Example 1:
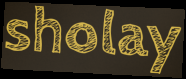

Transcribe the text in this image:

sholay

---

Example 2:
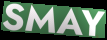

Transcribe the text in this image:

SMAY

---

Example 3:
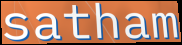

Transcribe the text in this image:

satham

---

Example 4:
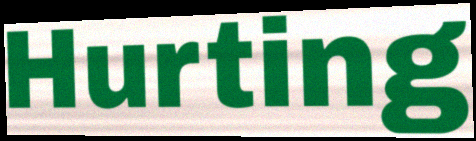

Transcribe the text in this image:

Hurting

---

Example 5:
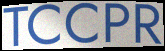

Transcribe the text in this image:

TCCPR